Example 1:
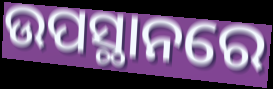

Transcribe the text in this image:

ଉପସ୍ଥାନରେ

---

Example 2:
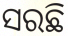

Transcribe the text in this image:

ସରଛି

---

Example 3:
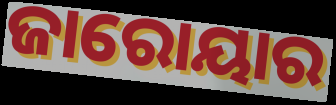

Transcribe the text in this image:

ଜାରୋୟାର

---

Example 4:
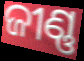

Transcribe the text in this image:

ଜୀଣ୍ଣ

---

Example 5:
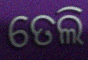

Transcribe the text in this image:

ତେଲି